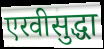
एरवीसुद्धा